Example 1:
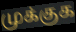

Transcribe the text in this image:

முக்குக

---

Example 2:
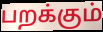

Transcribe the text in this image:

பறக்கும்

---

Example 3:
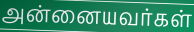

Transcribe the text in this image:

அன்னையவர்கள்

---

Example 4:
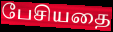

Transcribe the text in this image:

பேசியதை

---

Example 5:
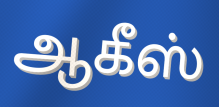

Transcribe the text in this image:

ஆகீஸ்